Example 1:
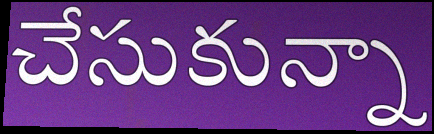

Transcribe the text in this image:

చేసుకున్నా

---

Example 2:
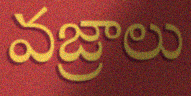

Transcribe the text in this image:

వజ్రాలు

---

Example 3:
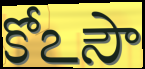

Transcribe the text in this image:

కోఽసౌ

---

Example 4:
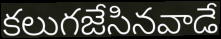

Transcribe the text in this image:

కలుగజేసినవాడే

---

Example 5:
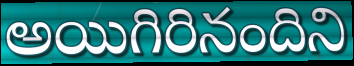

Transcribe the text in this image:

అయిగిరినందిని